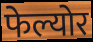
फेल्योर